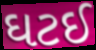
ઘટઈ